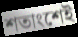
শতাংশেই